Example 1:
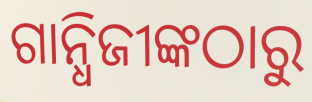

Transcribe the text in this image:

ଗାନ୍ଧିଜୀଙ୍କଠାରୁ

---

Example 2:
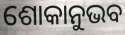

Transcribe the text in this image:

ଶୋକାନୁଭବ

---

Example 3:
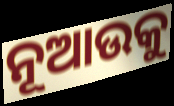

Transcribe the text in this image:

ନୂଆଉକୁ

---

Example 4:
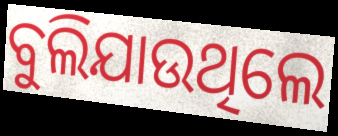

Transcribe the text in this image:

ବୁଲିଯାଉଥିଲେ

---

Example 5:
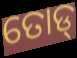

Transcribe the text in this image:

ତୋଡ୍